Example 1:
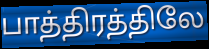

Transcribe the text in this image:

பாத்திரத்திலே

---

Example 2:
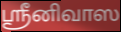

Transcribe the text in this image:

ஸ்ரீனிவாஸ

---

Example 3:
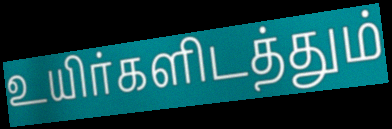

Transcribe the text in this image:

உயிர்களிடத்தும்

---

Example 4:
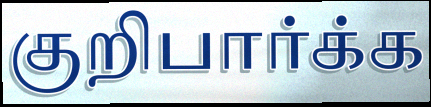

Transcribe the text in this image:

குறிபார்க்க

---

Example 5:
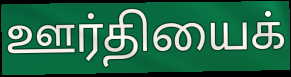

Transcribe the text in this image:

ஊர்தியைக்